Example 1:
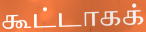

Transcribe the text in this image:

கூட்டாகக்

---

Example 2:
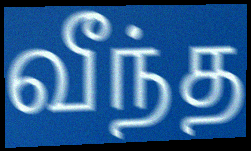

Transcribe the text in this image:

வீந்த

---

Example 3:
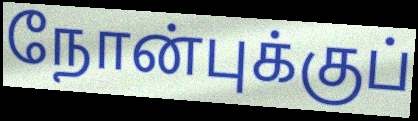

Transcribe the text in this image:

நோன்புக்குப்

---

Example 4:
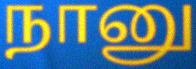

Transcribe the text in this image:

நானு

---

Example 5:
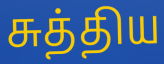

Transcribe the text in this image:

சுத்திய